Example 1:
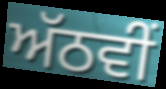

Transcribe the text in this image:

ਅੱਠਵੀੰ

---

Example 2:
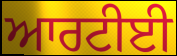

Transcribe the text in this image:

ਆਰਟੀਈ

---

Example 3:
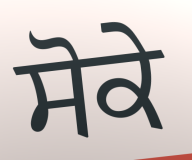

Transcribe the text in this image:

ਸੋਕੇ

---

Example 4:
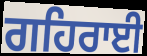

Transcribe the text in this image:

ਗਹਿਰਾਈ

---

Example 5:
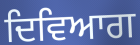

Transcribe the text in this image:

ਦਿਵਿਆਗ